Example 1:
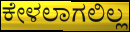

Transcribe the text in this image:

ಕೇಳಲಾಗಲಿಲ್ಲ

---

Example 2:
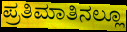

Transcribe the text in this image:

ಪ್ರತಿಮಾತಿನಲ್ಲೂ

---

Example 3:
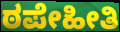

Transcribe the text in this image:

ಠಪೇಹೀತಿ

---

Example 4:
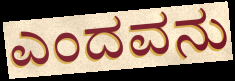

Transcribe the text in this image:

ಎಂದವನು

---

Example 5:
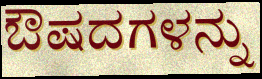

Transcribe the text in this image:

ಔಷದಗಳನ್ನು